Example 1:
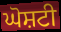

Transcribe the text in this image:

ਘੋਸ਼ਟੀ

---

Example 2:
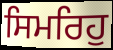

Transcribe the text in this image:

ਸਿਮਰਿਹੁ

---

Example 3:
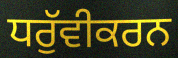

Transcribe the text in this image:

ਧਰੁੱਵੀਕਰਨ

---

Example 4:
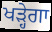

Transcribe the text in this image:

ਖੜ੍ਹੇਗਾ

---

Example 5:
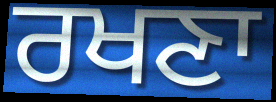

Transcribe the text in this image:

ਰਖਣਾ